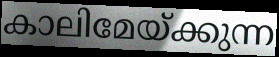
കാലിമേയ്ക്കുന്ന